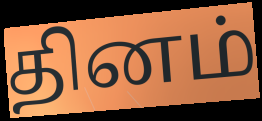
தினம்